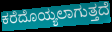
ಕರೆದೊಯ್ಯಲಾಗುತ್ತದೆ